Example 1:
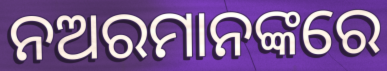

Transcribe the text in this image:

ନଅରମାନଙ୍କରେ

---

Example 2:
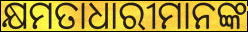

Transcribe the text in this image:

କ୍ଷମତାଧାରୀମାନଙ୍କ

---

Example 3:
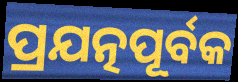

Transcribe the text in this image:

ପ୍ରଯତ୍ନପୂର୍ବକ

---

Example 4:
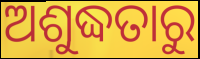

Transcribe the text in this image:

ଅଶୁଦ୍ଧତାରୁ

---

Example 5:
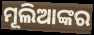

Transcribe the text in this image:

ମୂଲିଆଙ୍କର